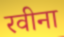
रवीना